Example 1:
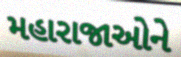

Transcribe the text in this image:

મહારાજાઓને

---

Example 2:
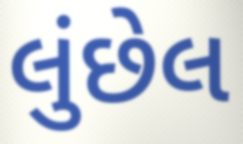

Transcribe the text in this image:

લુંછેલ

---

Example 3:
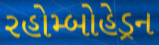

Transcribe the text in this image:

રહોમ્બોહેડ્રન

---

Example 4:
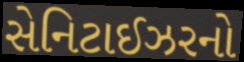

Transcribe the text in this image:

સેનિટાઈઝરનો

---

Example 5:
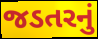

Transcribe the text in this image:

જડતરનું